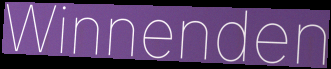
Winnenden